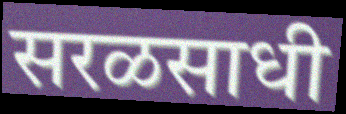
सरळसाधी